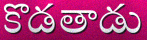
కొడతాడు